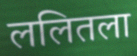
ललितला